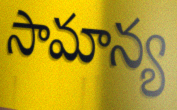
సామాన్య